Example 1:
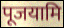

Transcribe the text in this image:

पूजयामि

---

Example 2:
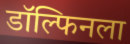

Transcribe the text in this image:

डॉल्फिनला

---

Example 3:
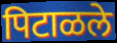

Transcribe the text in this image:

पिटाळले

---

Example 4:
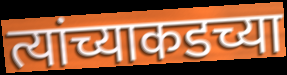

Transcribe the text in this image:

त्यांच्याकडच्या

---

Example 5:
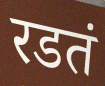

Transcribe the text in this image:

रडतं